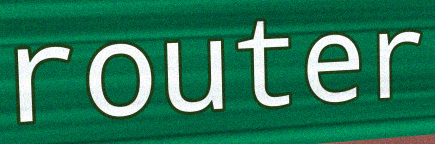
router